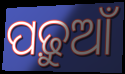
ପଢ଼ୁଆଁ